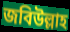
জবিউল্লাহ